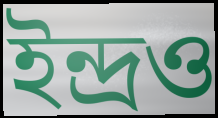
ইন্দ্রও